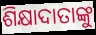
ଶିକ୍ଷାଦାତାଙ୍କୁ